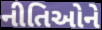
નીતિઓને